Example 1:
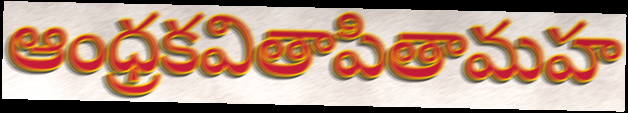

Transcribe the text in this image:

ఆంధ్రకవితాపితామహ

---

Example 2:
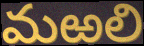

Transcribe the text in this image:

మఱలి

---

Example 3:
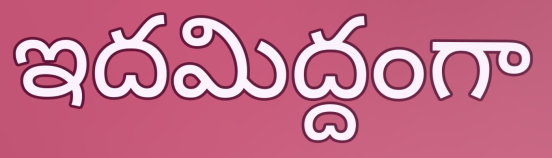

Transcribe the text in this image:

ఇదమిద్దంగా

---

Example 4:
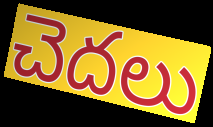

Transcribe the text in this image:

చెదలు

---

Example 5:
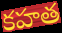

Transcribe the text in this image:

కహత